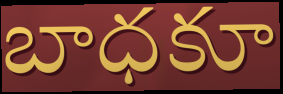
బాధకూ